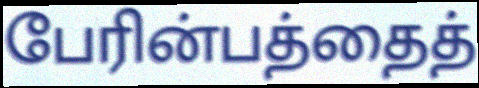
பேரின்பத்தைத்